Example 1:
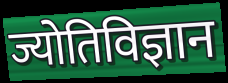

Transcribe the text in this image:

ज्योतिविज्ञान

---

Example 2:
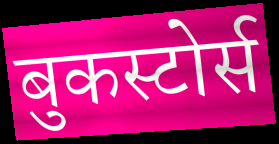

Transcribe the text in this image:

बुकस्टोर्स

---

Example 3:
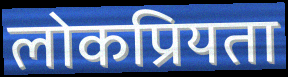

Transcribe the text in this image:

लोकप्रियता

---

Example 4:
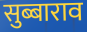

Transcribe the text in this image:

सुब्बाराव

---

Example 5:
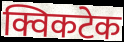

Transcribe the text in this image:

क्विकटेक